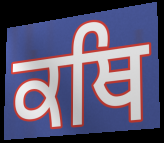
ਕਥਿ